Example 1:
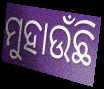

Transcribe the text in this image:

ମୁହାଉଁଛି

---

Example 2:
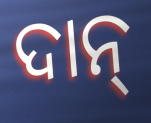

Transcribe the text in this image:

ଦାନ୍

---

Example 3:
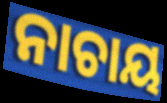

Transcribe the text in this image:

ନାଚାୟ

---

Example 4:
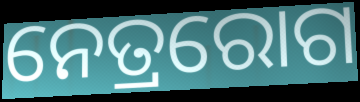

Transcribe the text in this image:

ନେତ୍ରରୋଗ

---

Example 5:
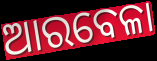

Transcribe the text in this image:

ଆରବେଳା